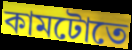
কামটোতে